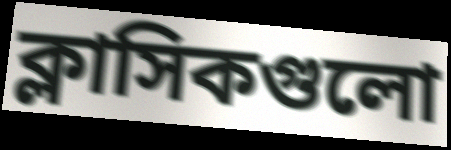
ক্লাসিকগুলো